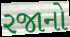
રજાનો